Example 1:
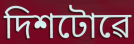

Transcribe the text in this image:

দিশটোৱে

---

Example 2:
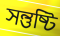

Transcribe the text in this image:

সন্তুষ্টি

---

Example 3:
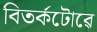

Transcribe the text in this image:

বিতৰ্কটোৱে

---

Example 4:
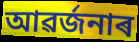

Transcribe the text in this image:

আৱৰ্জনাৰ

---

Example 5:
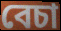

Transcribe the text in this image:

বেচা